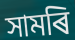
সামৰি